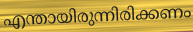
എന്തായിരുന്നിരിക്കണം